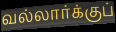
வல்லார்க்குப்